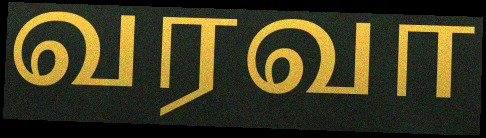
வரவா